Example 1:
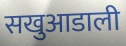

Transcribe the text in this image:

सखुआडाली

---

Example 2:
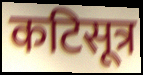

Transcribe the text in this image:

कटिसूत्र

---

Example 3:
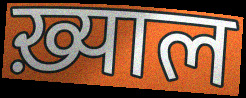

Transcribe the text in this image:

ख़्याल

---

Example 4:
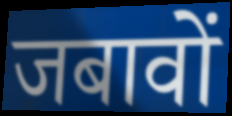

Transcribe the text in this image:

जबावों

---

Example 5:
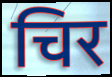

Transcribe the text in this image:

चिर